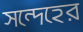
সন্দেহের